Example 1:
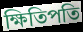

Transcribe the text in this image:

ক্ষিতিপতি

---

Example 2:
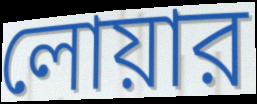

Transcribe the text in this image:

লোয়ার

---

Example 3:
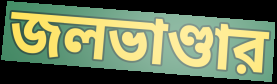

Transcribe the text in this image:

জলভাণ্ডার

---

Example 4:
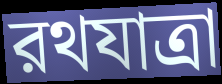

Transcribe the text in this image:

রথযাত্রা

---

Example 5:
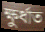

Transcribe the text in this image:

ক্ষুর্ধাত